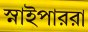
স্নাইপাররা